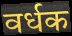
वर्धक